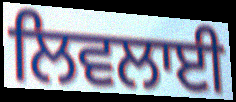
ਲਿਵਲਾਈ